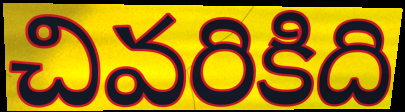
చివరికిది